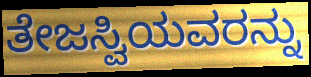
ತೇಜಸ್ವಿಯವರನ್ನು